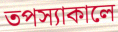
তপস্যাকালে